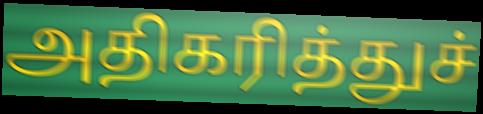
அதிகரித்துச்